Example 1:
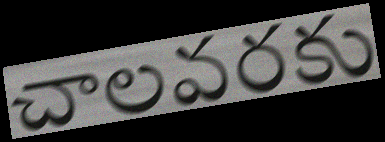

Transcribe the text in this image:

చాలవరకు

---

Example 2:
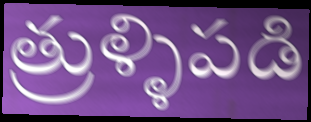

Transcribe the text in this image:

త్రుళ్ళిపడి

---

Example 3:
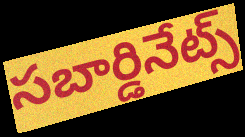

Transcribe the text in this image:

సబార్డినేట్స్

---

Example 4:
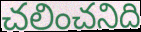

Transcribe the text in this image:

చలించనిది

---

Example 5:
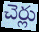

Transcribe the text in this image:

చెర్లు